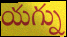
యగ్ను